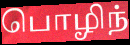
பொழிந்